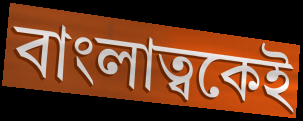
বাংলাত্বকেই